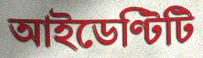
আইডেণ্টিটি